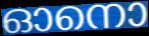
ഓനൊ